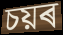
চয়ৰ